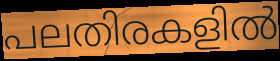
പലതിരകളിൽ